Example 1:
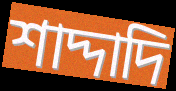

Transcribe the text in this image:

শাদ্দাদি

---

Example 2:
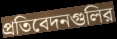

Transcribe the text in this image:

প্রতিবেদনগুলির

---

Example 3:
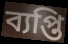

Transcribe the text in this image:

ব্যপ্তি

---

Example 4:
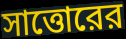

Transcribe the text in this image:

সাত্তোরের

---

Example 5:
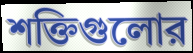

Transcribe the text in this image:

শক্তিগুলোর